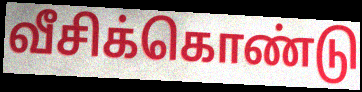
வீசிக்கொண்டு